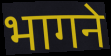
भागने